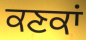
ਕਣਕਾਂ